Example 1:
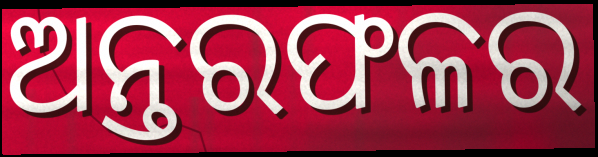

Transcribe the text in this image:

ଅନ୍ତରଫଳର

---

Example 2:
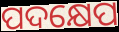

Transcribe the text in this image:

ପଦକ୍ଷେପ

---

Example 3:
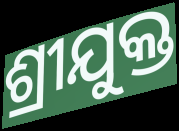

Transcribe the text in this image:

ଶ୍ରୀଯୁକ୍ତ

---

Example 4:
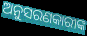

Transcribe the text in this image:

ଅନୁସରଣକାରୀଙ୍କ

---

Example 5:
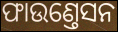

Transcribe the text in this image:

ଫାଉଣ୍ତେସନ